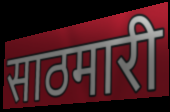
साठमारी